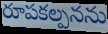
రూపకల్పనను